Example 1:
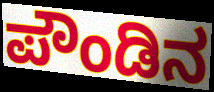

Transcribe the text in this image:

ಪೌಂಡಿನ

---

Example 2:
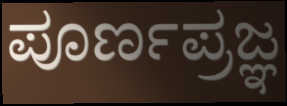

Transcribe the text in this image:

ಪೂರ್ಣಪ್ರಜ್ಞ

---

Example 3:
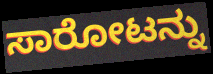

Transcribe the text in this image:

ಸಾರೋಟನ್ನು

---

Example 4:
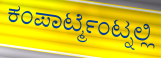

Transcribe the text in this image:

ಕಂಪಾರ್ಟ್ಮೆಂಟ್ನಲ್ಲಿ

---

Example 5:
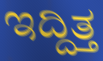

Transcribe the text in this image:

ಇದ್ದಿತ್ತ